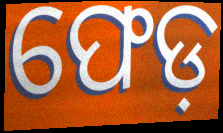
ଫେଡ଼